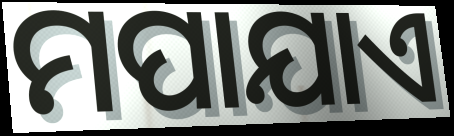
ମପାଯାଏ